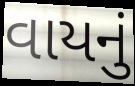
વાયનું